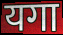
यगा